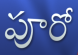
పూరో